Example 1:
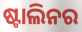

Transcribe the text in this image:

ଷ୍ଟାଲିନର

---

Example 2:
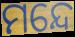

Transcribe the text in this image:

ମନ୍ଦେ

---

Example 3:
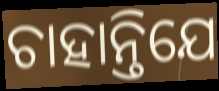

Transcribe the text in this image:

ଚାହାନ୍ତିଯେ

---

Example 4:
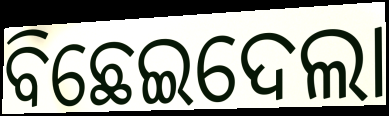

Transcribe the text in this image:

ବିଛେଇଦେଲା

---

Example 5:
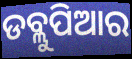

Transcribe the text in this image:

ଡବ୍ଲୁପିଆର